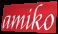
amiko